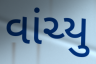
વાંચ્યુ